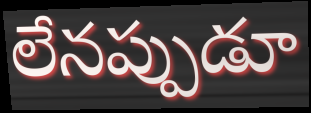
లేనప్పుడూ